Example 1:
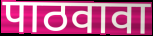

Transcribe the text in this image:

पाठवावा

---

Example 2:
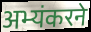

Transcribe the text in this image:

अभ्यंकरने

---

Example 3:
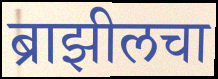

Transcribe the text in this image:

ब्राझीलचा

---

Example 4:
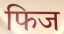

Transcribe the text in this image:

फिज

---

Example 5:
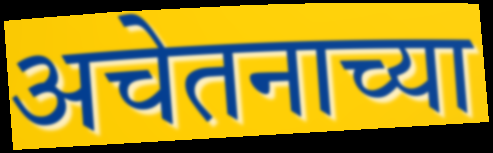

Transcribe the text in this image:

अचेतनाच्या